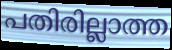
പതിരില്ലാത്ത